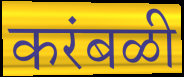
करंबळी